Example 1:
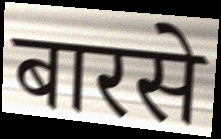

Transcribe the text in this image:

बारसे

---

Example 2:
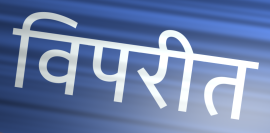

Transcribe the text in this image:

विपरीत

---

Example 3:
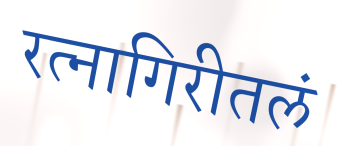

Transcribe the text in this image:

रत्नागिरीतलं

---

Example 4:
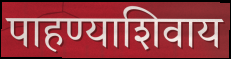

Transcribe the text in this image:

पाहण्याशिवाय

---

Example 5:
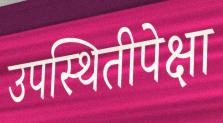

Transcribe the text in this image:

उपस्थितीपेक्षा